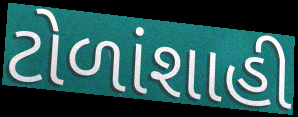
ટોળાંશાહી